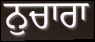
ਨੁਚਾਰਾ